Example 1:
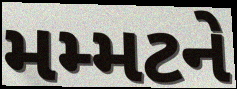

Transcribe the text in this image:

મમ્મટને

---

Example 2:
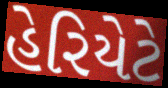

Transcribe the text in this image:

હેરિયેટે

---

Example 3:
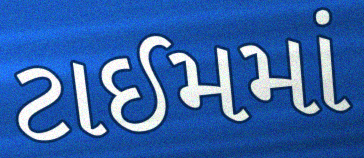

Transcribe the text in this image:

ટાઈમમાં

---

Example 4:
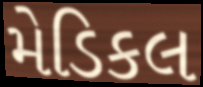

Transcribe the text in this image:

મેડિકલ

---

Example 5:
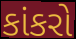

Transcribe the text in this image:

કાંકરો